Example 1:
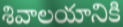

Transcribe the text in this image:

శివాలయానికి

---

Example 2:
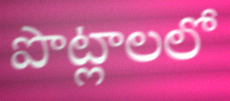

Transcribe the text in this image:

పొట్లాలలో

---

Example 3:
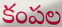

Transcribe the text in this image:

కంపల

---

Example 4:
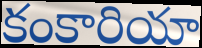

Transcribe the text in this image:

కంకారియా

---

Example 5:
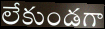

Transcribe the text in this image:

లేకుండగా